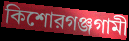
কিশোরগঞ্জগামী